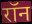
रॉन